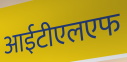
आईटीएलएफ